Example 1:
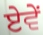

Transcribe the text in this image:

ਏਵੇਂ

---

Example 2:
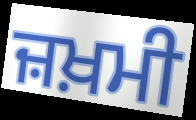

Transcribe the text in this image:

ਜ਼ਖ਼ਮੀ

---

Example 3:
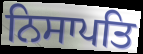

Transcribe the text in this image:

ਨਿਸਾਪਤਿ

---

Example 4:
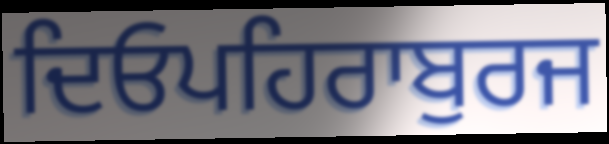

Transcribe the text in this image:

ਦਿਓਪਹਿਰਾਬੁਰਜ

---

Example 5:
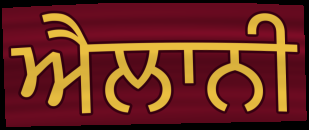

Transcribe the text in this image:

ਐਲਾਨੀ